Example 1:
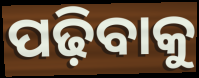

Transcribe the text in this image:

ପଢ଼ିବାକୁ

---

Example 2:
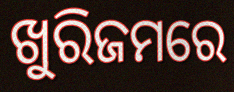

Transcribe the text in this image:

ଖୁରିଜମରେ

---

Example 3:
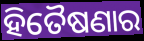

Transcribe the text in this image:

ହିତୈଷଣାର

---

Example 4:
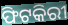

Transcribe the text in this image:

ଫିଟକିରୀ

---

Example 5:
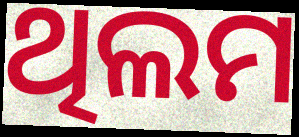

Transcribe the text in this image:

ଥିଲମ